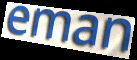
eman